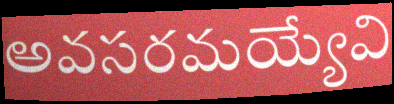
అవసరమయ్యేవి